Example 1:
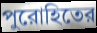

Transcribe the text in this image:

পুরোহিতের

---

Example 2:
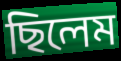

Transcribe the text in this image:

ছিলেম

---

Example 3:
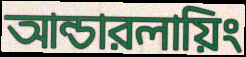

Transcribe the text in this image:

আন্ডারলায়িং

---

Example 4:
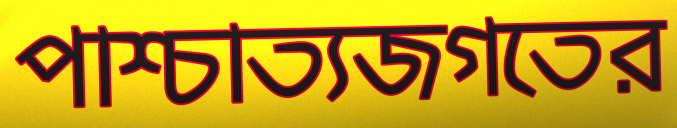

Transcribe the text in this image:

পাশ্চাত্যজগতের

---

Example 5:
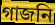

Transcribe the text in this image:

গাজনি